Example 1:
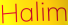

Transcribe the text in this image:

Halim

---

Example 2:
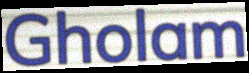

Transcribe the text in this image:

Gholam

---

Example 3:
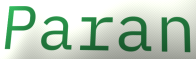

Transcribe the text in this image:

Paran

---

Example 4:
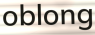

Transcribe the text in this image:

oblong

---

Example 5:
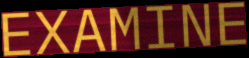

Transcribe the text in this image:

EXAMINE